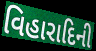
વિહારાદિની